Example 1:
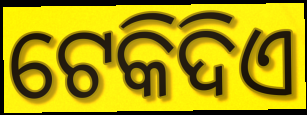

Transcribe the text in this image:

ଟେକିଦିଏ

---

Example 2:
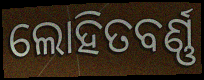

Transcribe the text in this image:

ଲୋହିତବର୍ଣ୍ଣ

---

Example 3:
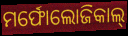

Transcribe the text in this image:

ମର୍ଫୋଲୋଜିକାଲ୍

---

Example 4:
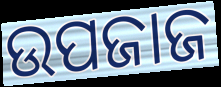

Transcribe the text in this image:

ଉପଜାଜ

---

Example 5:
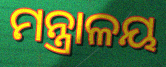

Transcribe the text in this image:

ମନ୍ତ୍ରାଳୟ